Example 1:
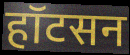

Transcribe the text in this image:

हॉटसन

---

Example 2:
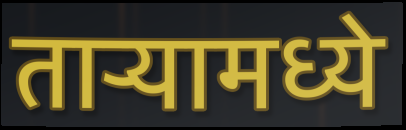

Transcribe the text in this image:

ताऱ्यामध्ये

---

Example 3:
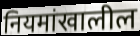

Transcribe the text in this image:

नियमांखालील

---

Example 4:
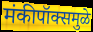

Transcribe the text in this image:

मंकीपॉक्समुळे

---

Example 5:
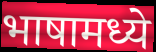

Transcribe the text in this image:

भाषामध्ये